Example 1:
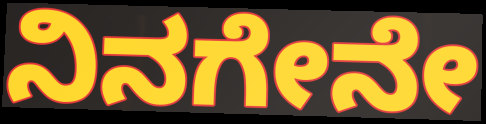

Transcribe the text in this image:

ನಿನಗೇನೇ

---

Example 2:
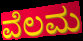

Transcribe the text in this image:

ವೆಲಮ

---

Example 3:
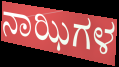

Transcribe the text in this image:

ನಾಝಿಗಳ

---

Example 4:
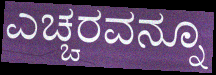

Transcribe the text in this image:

ಎಚ್ಚರವನ್ನೂ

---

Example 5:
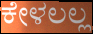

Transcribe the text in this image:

ಕೇಳಲಲ್ಲ